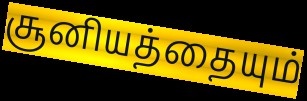
சூனியத்தையும்